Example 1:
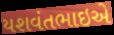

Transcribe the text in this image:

યશવંતભાઇએ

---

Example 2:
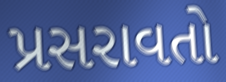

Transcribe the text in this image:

પ્રસરાવતો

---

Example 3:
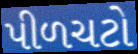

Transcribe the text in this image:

પીળચટો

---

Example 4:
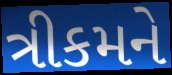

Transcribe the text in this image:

ત્રીકમને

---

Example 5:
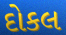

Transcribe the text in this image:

દોકલ